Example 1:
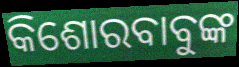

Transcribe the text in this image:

କିଶୋରବାବୁଙ୍କ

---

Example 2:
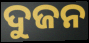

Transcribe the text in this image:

ଦୁଜନ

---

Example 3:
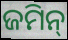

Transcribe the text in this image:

ଜମିନ୍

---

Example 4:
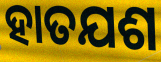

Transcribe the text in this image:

ହାତଯଶ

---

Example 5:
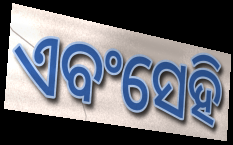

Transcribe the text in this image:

ଏବଂସେହି